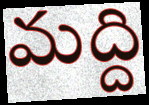
మద్ది